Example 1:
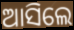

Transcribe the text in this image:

ଆସିଲେ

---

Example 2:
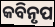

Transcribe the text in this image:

କବିନୃପ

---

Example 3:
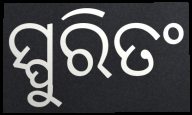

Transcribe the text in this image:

ସ୍ପୁରିତଂ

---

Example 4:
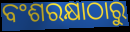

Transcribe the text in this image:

ବଂଶରକ୍ଷାଠାରୁ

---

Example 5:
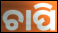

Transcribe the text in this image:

ଚାପି